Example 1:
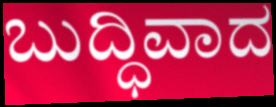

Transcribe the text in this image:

ಬುದ್ಧಿವಾದ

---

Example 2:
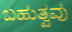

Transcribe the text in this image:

ಬಹುತ್ವವು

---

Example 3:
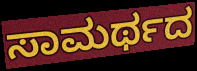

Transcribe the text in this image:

ಸಾಮರ್ಥದ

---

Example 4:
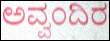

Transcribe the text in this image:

ಅವ್ವಂದಿರ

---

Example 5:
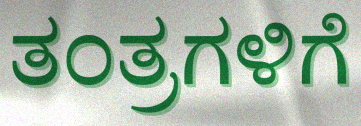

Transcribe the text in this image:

ತಂತ್ರಗಳಿಗೆ